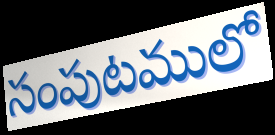
సంపుటములో